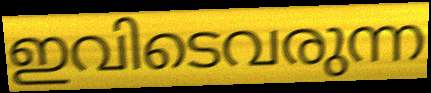
ഇവിടെവരുന്ന